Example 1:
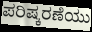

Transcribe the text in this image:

ಪರಿಷ್ಕರಣೆಯು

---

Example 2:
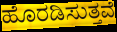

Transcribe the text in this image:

ಹೊರಡಿಸುತ್ತವೆ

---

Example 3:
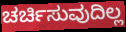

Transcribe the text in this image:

ಚರ್ಚಿಸುವುದಿಲ್ಲ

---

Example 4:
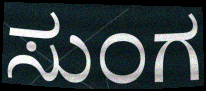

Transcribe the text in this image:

ಸುಂಗ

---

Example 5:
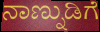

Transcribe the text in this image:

ನಾಣ್ನುಡಿಗೆ